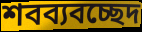
শবব্যবচ্ছেদ